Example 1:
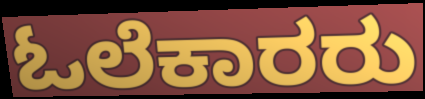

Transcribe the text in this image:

ಓಲೆಕಾರರು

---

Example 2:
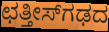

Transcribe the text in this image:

ಛತ್ತೀಸ್‌ಗಢದ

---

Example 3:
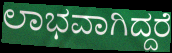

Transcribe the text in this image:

ಲಾಭವಾಗಿದ್ದರೆ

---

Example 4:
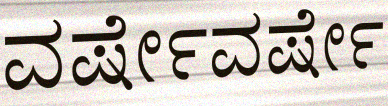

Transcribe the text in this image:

ವರ್ಷೇವರ್ಷೇ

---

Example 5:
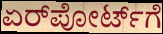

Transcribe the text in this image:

ಏರ್‌ಪೋರ್ಟ್‌ಗೆ